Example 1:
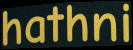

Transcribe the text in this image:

hathni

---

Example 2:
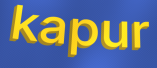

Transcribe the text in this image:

kapur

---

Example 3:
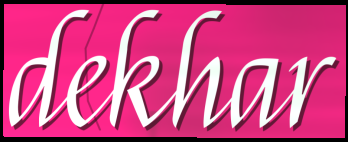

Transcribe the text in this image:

dekhar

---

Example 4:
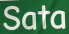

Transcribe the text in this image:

Sata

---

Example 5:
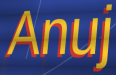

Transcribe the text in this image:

Anuj